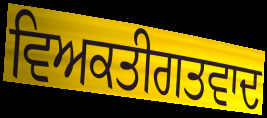
ਵਿਅਕਤੀਗਤਵਾਦ